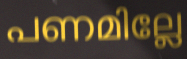
പണമില്ലേ